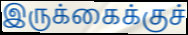
இருக்கைக்குச்